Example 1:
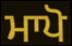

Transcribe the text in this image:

ਮਾਪੋ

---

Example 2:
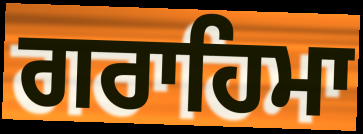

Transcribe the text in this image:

ਗਰਾਹਿਮਾ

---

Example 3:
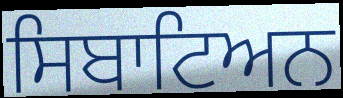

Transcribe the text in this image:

ਸਿਬਾਟਿਅਨ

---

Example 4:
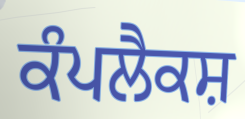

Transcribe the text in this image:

ਕੰਪਲੈਕਸ਼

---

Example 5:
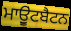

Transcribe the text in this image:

ਮਾਉੂਂਟਬੈਟਨ